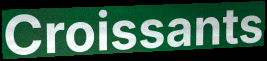
Croissants